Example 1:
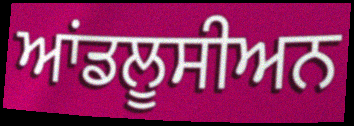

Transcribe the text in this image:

ਆਂਡਲੂਸੀਅਨ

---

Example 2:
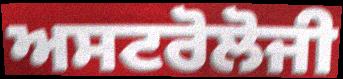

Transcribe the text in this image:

ਅਸਟਰੋਲੋਜੀ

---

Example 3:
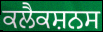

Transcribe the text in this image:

ਕਲੈਕਸ਼ਨਸ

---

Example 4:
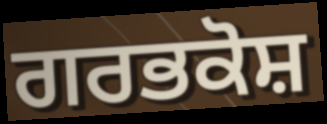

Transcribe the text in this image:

ਗਰਭਕੋਸ਼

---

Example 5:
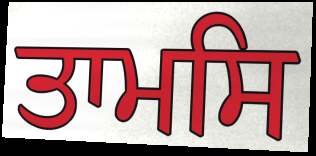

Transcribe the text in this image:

ਤਾਮਸਿ